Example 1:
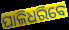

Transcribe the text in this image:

ପାଳିଧରିବେ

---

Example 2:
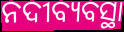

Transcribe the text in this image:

ନଦୀବ୍ୟବସ୍ଥା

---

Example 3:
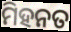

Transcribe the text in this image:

ମିହନତ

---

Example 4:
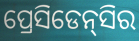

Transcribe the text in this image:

ପ୍ରେସିଡେନ୍‌ସିର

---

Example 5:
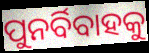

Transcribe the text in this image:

ପୁନର୍ବିବାହକୁ